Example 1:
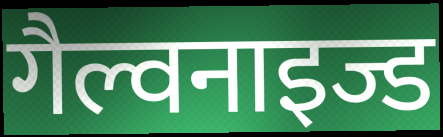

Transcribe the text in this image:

गैल्वनाइज्ड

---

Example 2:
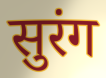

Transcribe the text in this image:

सुरंग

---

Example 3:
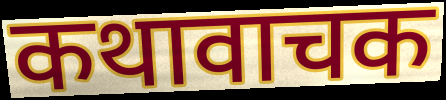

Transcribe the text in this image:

कथावाचक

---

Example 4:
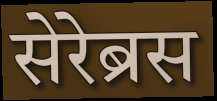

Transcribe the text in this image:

सेरेब्रस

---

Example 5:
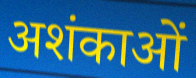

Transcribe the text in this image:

अशंकाओं